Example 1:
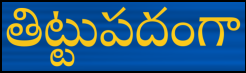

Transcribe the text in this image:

తిట్టుపదంగా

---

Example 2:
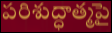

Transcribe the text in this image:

పరిశుద్ధాత్మపై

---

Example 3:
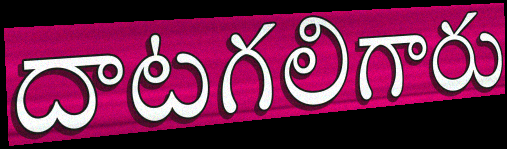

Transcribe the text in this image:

దాటగలిగారు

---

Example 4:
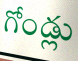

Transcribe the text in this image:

గోండ్లు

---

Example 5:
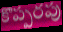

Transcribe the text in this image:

కొప్పరపు